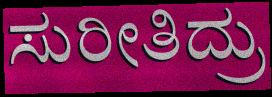
ಸುರೀತಿದ್ರು